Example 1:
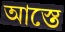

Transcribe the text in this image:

আস্তে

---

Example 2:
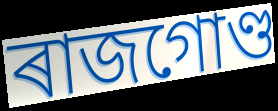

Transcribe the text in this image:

ৰাজগোণ্ড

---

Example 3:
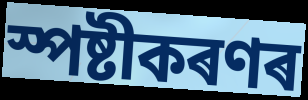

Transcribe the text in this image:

স্পষ্টীকৰণৰ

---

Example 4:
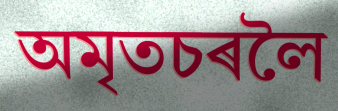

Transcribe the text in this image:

অমৃতচৰলৈ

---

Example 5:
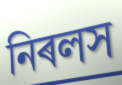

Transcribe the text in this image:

নিৰলস